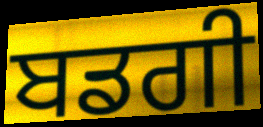
ਬਡਗੀ